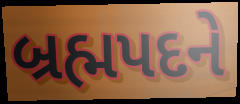
બ્રહ્મપદને